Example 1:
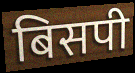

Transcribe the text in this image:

बिसपी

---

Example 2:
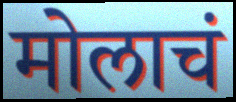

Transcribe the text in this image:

मोलाचं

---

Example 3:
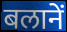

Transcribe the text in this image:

बलानें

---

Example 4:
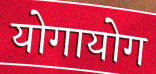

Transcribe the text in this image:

योगायोग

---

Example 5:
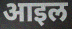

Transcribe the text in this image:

आइल